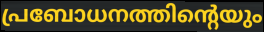
പ്രബോധനത്തിന്റെയും